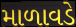
માળાવડે